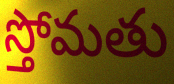
స్తోమతు